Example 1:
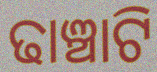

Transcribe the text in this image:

ଢାଞ୍ଚାଟି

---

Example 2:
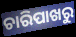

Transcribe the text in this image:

ଚାରିପାଖରୁ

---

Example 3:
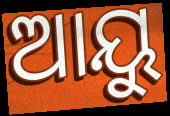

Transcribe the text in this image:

ଆୟୁ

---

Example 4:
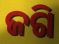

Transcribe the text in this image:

ଜଗି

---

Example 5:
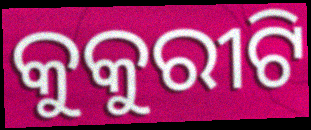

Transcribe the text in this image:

କୁକୁରୀଟି